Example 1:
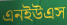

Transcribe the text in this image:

এনইউএস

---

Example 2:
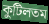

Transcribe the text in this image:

কুটিলতম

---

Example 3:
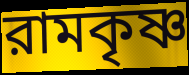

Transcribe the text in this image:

রামকৃষ্ণ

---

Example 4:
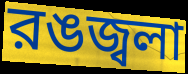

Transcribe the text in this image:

রঙজ্বলা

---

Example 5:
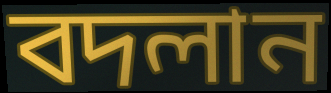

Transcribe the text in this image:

বদলান